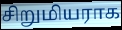
சிறுமியராக